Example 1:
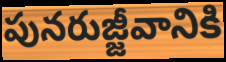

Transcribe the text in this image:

పునరుజ్జీవానికి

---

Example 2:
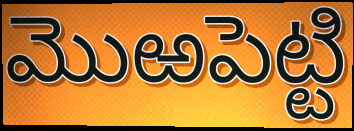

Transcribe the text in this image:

మొఱపెట్టి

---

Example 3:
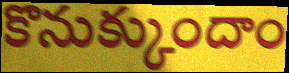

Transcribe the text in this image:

కొనుక్కుందాం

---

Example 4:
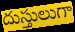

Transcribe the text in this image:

దుస్తులుగా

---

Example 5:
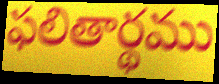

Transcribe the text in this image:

ఫలితార్థము